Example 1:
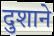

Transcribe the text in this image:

दुशाने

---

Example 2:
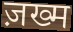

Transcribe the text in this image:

ज़ख्म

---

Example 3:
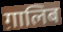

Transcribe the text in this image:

ग़ालिब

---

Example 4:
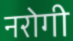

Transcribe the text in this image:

नरोगी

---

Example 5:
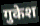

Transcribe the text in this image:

गुकेश